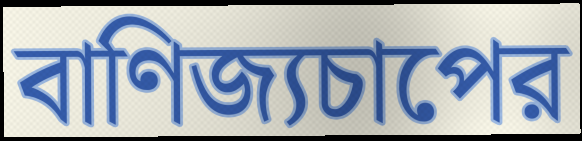
বাণিজ্যচাপের